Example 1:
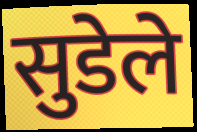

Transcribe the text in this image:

सुडेले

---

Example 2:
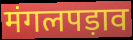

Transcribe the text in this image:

मंगलपड़ाव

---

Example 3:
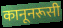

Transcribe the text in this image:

कानूनरूसी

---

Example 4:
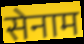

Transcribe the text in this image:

सेनाम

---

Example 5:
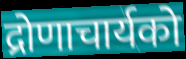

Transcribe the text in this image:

द्रोणाचार्यको